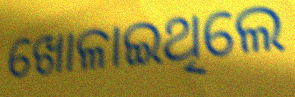
ଖୋଳାଇଥିଲେ